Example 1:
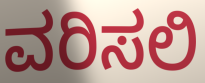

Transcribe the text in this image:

ವರಿಸಲಿ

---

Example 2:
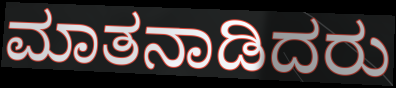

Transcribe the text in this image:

ಮಾತನಾಡಿದರು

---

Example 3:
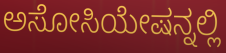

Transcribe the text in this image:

ಅಸೋಸಿಯೇಷನ್ನಲ್ಲಿ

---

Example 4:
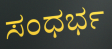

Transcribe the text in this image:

ಸಂಧರ್ಭ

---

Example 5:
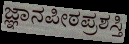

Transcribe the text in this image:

ಜ್ಞಾನಪೀಠಪ್ರಶಸ್ತಿ